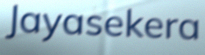
Jayasekera